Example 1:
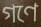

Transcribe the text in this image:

গণে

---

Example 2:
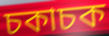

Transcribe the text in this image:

চকাচক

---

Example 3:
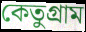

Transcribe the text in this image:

কেতুগ্রাম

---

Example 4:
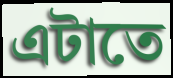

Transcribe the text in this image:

এটাতে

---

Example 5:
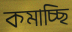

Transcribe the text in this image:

কমাচ্ছি